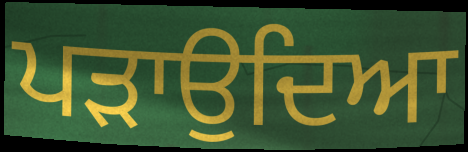
ਪੜਾਉਦਿਆ